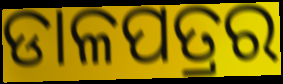
ଡାଳପତ୍ରର